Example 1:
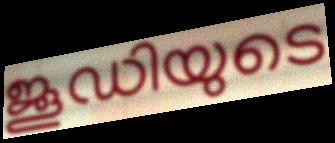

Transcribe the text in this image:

ജൂഡിയുടെ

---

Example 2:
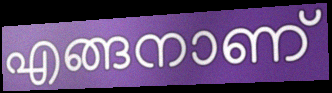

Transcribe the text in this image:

എങ്ങനാണ്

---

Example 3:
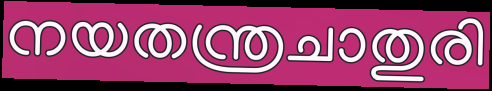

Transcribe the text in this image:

നയതന്ത്രചാതുരി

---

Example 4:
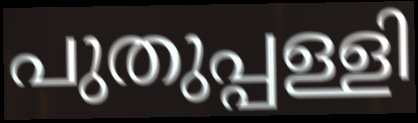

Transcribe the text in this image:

പുതുപ്പള്ളി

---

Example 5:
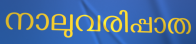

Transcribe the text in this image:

നാലുവരിപ്പാത